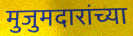
मुजुमदारांच्या